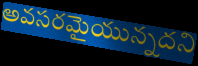
అవసరమైయున్నదని